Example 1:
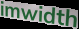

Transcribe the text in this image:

imwidth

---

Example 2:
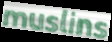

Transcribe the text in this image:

muslins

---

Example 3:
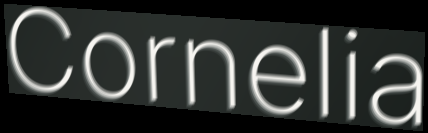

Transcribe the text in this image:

Cornelia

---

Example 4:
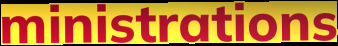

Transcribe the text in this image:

ministrations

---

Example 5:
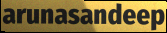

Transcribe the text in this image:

arunasandeep